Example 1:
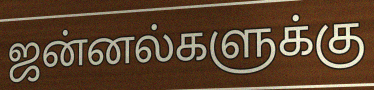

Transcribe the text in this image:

ஜன்னல்களுக்கு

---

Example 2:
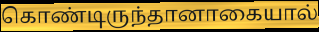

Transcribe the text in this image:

கொண்டிருந்தானாகையால்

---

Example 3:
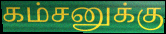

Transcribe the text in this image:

கம்சனுக்கு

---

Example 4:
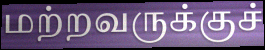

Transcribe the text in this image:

மற்றவருக்குச்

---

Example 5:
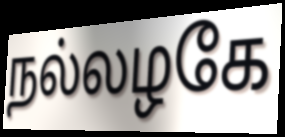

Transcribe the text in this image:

நல்லழகே